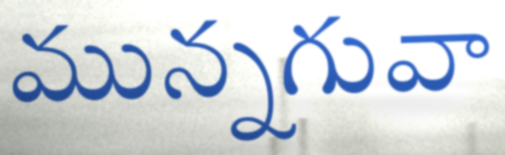
మున్నగువా